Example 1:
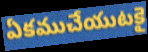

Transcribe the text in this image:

ఏకముచేయుటకై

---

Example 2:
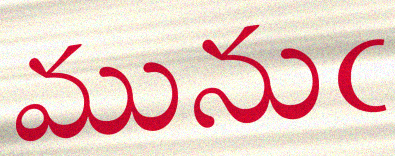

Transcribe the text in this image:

మునుఁ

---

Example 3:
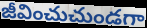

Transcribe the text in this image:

జీవించుచుండగా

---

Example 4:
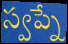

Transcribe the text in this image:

స్వప్నే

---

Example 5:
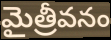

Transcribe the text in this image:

మైత్రీవనం